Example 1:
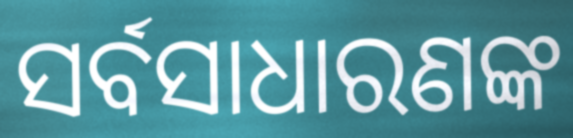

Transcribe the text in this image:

ସର୍ବସାଧାରଣଙ୍କ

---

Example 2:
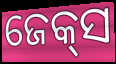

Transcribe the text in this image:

ଜେକ୍‍ସ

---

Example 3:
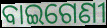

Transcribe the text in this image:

ବାଇଗେଣୀ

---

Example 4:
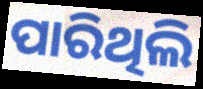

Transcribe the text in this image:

ପାରିଥିଲି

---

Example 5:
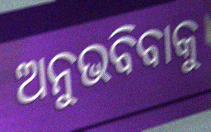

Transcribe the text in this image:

ଅନୁଭବିବାକୁ